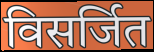
विसर्जित